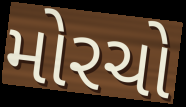
મોરચો